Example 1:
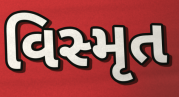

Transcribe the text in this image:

વિસ્મૃત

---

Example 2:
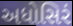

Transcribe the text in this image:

અધોસિરં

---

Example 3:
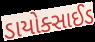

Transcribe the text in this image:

ડાયોક્સાઈડ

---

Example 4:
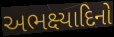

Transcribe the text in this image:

અભક્ષ્યાદિનો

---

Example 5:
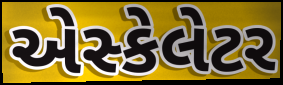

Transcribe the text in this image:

એસ્કેલેટર